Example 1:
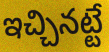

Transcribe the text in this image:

ఇచ్చినట్టే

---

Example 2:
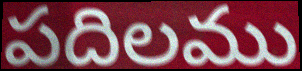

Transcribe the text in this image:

పదిలము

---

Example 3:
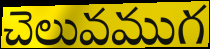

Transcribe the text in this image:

చెలువముగ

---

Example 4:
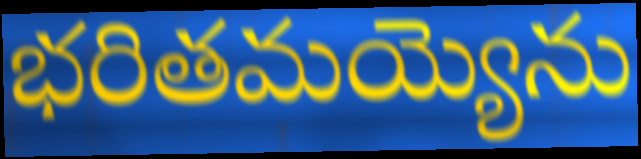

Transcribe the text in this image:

భరితమయ్యెను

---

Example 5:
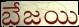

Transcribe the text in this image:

బేజయి